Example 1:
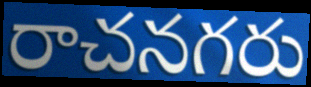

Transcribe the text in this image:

రాచనగరు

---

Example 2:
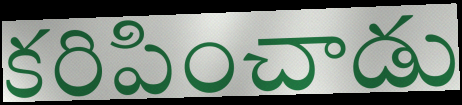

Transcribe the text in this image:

కరిపించాడు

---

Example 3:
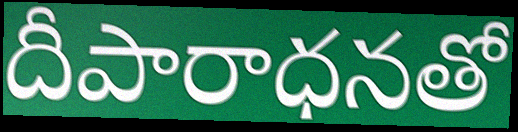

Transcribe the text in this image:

దీపారాధనతో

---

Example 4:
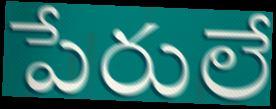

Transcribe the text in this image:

పేరులే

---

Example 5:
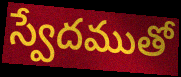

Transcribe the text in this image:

స్వేదముతో